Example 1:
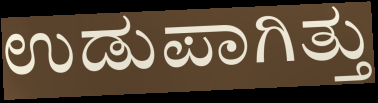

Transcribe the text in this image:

ಉಡುಪಾಗಿತ್ತು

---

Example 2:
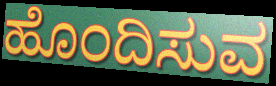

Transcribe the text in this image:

ಹೊಂದಿಸುವ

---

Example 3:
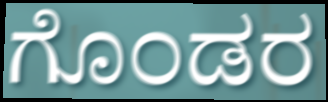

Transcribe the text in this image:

ಗೊಂಡರ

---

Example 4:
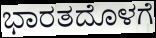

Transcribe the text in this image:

ಭಾರತದೊಳಗೆ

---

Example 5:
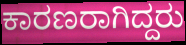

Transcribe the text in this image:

ಕಾರಣರಾಗಿದ್ದರು